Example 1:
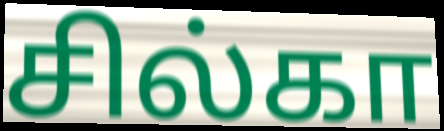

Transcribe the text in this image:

சில்கா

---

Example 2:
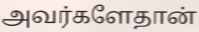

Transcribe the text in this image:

அவர்களேதான்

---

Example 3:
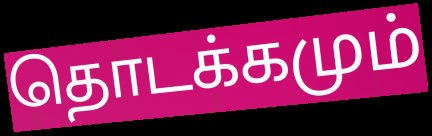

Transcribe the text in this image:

தொடக்கமும்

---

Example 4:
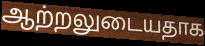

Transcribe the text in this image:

ஆற்றலுடையதாக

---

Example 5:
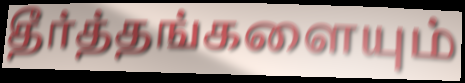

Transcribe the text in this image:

தீர்த்தங்களையும்